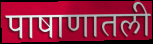
पाषाणातली